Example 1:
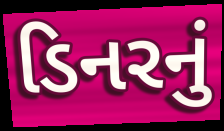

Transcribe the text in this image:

ડિનરનું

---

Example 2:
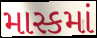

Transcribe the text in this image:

માસ્કમાં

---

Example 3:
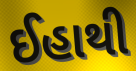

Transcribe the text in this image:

ઈહાથી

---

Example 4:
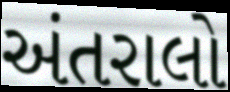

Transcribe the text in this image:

અંતરાલો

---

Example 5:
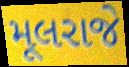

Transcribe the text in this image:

મૂલરાજે